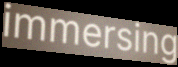
immersing